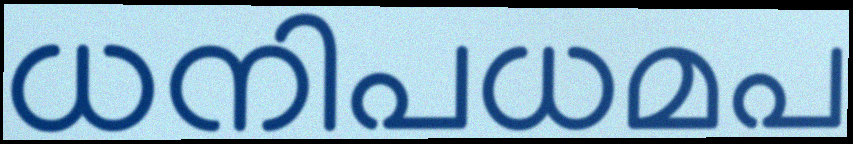
ധനിപധമപ